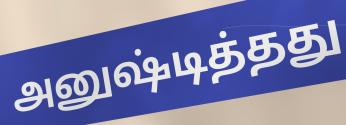
அனுஷ்டித்தது